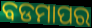
ବଡମାପର